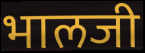
भालजी